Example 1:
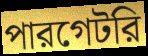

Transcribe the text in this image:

পারগেটরি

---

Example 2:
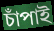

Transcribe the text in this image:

চাঁপাই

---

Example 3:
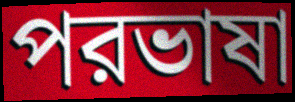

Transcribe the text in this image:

পরভাষা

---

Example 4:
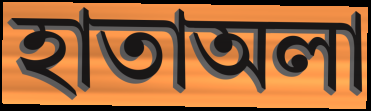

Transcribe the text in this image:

হাতাঅলা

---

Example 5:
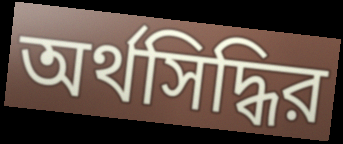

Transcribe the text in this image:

অর্থসিদ্ধির